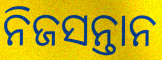
ନିଜସନ୍ତାନ